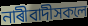
নাৰীবাদীসকলে